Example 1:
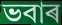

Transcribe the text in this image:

ভবাৰ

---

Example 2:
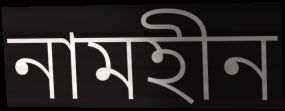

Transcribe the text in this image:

নামহীন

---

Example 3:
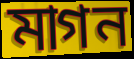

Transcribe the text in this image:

মাগন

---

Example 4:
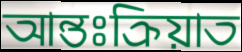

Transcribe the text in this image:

আন্তঃক্ৰিয়াত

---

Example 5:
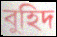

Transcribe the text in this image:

বুহিদ